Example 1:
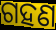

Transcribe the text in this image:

ଗହଣ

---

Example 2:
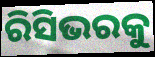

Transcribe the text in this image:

ରିସିଭରକୁ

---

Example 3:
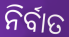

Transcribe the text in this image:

ନିର୍ବାତ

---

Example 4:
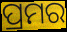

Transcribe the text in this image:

ପ୍ରମର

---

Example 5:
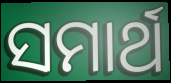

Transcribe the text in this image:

ସମାର୍ଥ